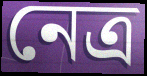
নেত্র